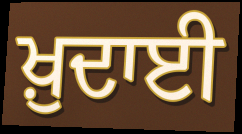
ਖ਼ੁਦਾਈ